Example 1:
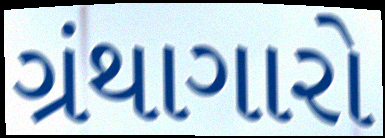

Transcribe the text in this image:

ગ્રંથાગારો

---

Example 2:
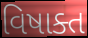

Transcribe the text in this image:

વિષાક્ત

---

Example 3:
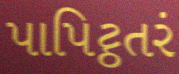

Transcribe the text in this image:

પાપિટ્ઠતરં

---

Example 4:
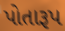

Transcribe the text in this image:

પોતારૂપ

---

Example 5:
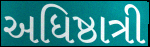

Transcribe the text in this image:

અધિષ્ઠાત્રી